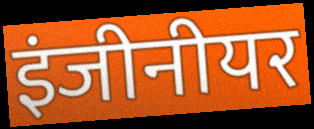
इंजीनीयर